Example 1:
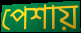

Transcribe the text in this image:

পেশায়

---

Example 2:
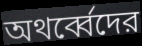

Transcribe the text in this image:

অথর্ব্বেদের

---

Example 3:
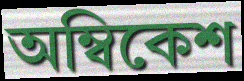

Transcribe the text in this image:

অম্বিকেশ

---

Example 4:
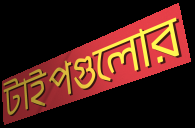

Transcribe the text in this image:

টাইপগুলোর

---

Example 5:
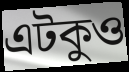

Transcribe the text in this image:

এটকুও